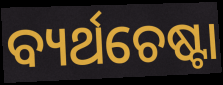
ବ୍ୟର୍ଥଚେଷ୍ଟା